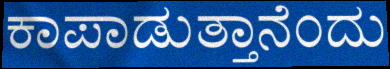
ಕಾಪಾಡುತ್ತಾನೆಂದು